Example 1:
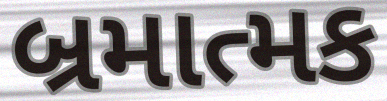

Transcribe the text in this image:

બ્રમાત્મક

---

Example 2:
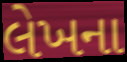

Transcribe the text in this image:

લેખના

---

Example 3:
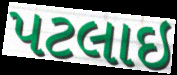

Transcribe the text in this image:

પટલાઇ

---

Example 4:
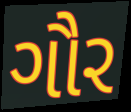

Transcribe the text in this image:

ગૌર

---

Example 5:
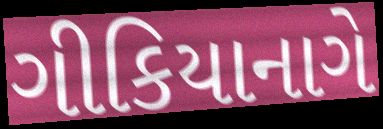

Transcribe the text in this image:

ગીકિયાનાગે